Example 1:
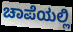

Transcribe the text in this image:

ಚಾಪೆಯಲ್ಲಿ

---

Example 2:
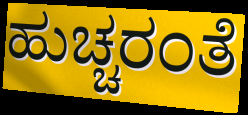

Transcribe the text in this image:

ಹುಚ್ಚರಂತೆ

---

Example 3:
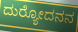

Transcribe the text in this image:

ದುರ್‍ಯೋದನನ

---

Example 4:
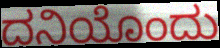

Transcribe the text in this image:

ದನಿಯೊಂದು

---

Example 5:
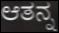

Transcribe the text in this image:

ಆತನ್ನ